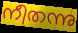
നീതന്നു